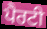
ਪੈਰਟੀ